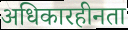
अधिकारहीनता